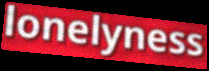
lonelyness